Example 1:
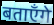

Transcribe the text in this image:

बताएँगे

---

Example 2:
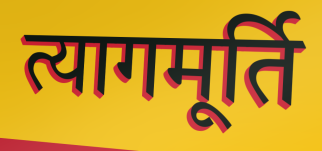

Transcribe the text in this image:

त्यागमूर्ति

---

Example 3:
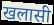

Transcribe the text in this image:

खलासी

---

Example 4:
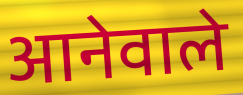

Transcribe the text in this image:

आनेवाले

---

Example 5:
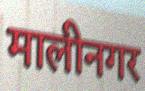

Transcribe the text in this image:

मालीनगर